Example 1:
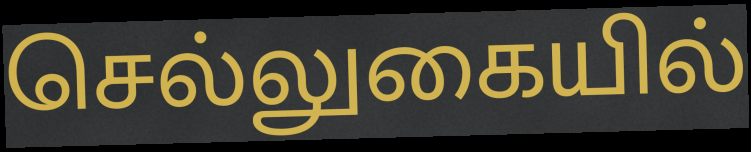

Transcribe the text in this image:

செல்லுகையில்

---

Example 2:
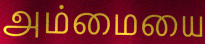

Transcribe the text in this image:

அம்மையை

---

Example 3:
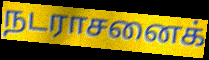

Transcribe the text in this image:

நடராசனைக்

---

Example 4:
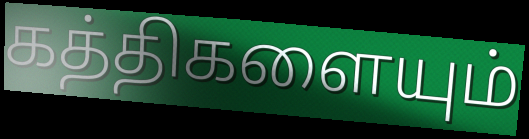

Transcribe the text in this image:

கத்திகளையும்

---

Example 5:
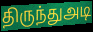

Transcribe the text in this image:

திருந்துஅடி